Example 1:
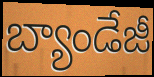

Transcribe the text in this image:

బ్యాండేజీ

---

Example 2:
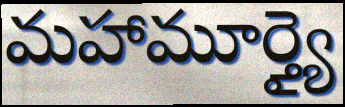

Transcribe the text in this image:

మహామూర్త్యై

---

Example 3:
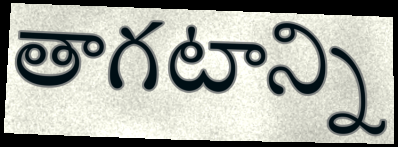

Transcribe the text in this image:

తాగటాన్ని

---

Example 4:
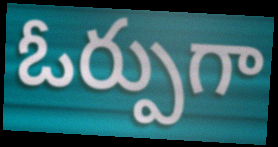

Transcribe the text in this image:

ఓర్పుగా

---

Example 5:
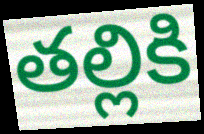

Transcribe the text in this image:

తల్లికి